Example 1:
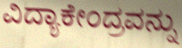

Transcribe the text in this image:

ವಿದ್ಯಾಕೇಂದ್ರವನ್ನು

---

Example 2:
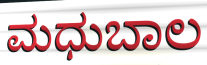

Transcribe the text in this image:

ಮಧುಬಾಲ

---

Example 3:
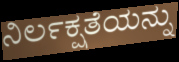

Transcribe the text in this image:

ನಿರ್ಲಕ್ಷತೆಯನ್ನು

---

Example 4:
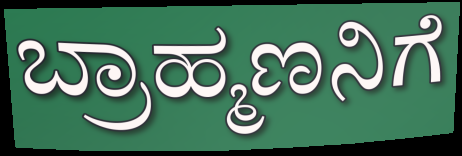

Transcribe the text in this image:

ಬ್ರಾಹ್ಮಣನಿಗೆ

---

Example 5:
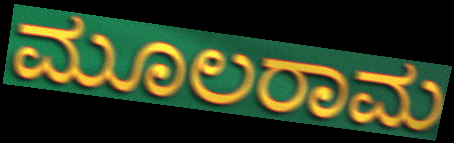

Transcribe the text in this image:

ಮೂಲರಾಮ